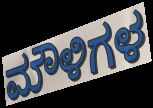
ಮೌಳಿಗಳ